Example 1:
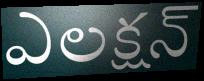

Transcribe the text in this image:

ఎలక్షన్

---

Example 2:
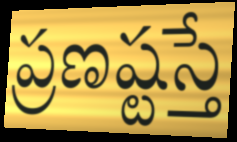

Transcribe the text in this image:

ప్రణష్టస్తే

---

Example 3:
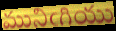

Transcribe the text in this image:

మునిఁగియు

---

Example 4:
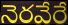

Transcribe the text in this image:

నెరవేరే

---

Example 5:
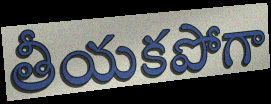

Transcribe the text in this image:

తీయకపోగా